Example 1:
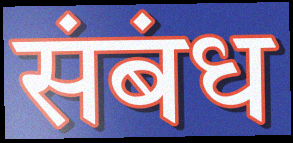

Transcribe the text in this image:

संबंध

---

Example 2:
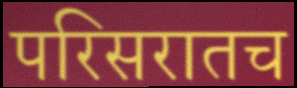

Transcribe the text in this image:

परिसरातच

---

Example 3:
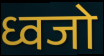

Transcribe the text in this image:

ध्वजो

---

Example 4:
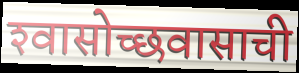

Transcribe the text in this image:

श्वासोच्छवासाची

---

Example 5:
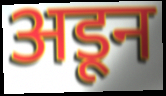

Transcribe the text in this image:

अडून